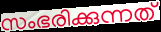
സംഭരിക്കുന്നത്